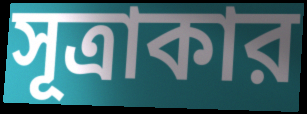
সূত্রাকার